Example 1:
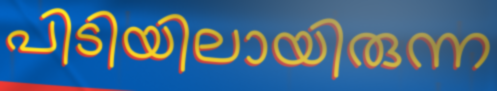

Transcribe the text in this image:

പിടിയിലായിരുന്ന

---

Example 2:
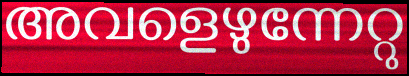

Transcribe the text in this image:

അവളെഴുന്നേറ്റു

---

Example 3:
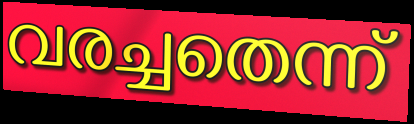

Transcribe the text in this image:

വരച്ചതെന്ന്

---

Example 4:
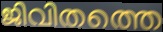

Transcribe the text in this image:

ജിവിതത്തെ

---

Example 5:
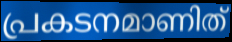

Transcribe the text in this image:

പ്രകടനമാണിത്